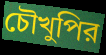
চৌখুপির